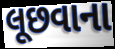
લૂછવાના